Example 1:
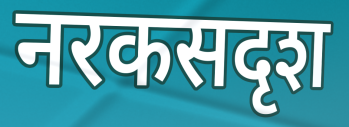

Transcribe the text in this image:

नरकसदृश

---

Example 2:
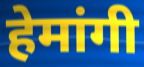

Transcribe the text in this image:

हेमांगी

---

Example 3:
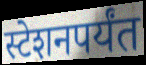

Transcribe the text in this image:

स्टेशनपर्यंत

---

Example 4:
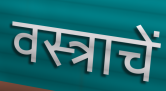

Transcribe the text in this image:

वस्त्राचें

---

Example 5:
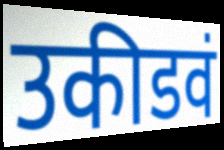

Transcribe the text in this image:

उकीडवं